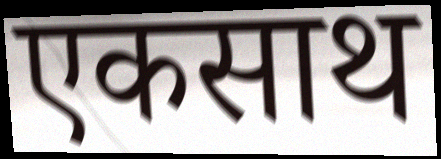
एकसाथ